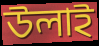
উলাই